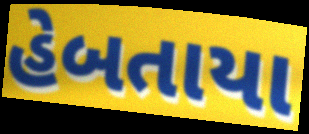
હેબતાયા